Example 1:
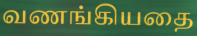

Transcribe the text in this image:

வணங்கியதை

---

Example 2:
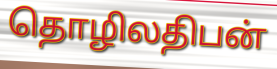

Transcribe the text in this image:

தொழிலதிபன்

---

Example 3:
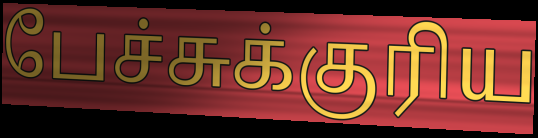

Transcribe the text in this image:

பேச்சுக்குரிய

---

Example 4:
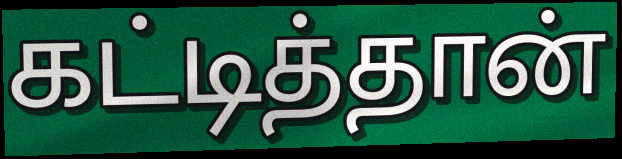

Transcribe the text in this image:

கட்டித்தான்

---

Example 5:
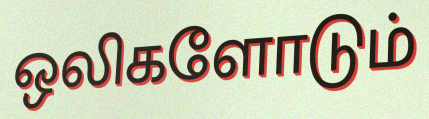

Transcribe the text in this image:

ஒலிகளோடும்